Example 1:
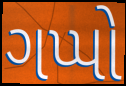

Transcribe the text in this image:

ગપ્પો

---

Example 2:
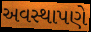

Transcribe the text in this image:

અવસ્થાપણે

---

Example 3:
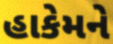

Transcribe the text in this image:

હાકેમને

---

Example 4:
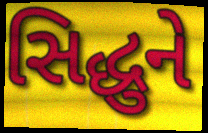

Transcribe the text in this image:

સિદ્ધુને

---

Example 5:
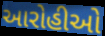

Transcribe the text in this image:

આરોહીઓ